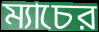
ম্যাচের